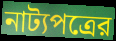
নাট্যপত্রের